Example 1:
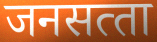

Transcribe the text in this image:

जनसत्‍ता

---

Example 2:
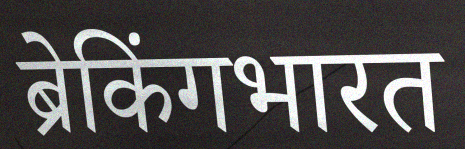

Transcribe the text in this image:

ब्रेकिंगभारत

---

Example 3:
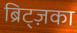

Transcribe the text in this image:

ब्रिट्ज़का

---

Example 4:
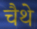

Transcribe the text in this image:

चैथे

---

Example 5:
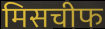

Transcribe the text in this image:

मिसचीफ